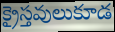
క్రైస్తవులుకూడ